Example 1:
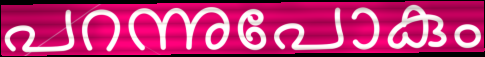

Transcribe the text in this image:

പറന്നുപോകും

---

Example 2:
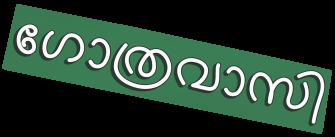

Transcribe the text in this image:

ഗോത്രവാസി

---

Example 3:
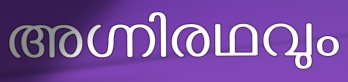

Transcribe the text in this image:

അഗ്നിരഥവും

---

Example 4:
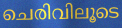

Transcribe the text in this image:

ചെരിവിലൂടെ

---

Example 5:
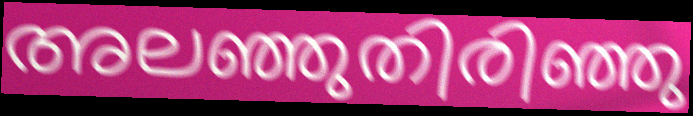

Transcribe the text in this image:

അലഞ്ഞുതിരിഞ്ഞു